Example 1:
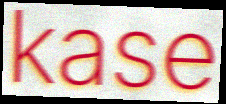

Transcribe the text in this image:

kase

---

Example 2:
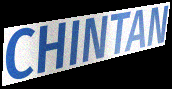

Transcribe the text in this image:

CHINTAN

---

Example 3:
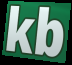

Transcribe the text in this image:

kb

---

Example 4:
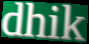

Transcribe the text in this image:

dhik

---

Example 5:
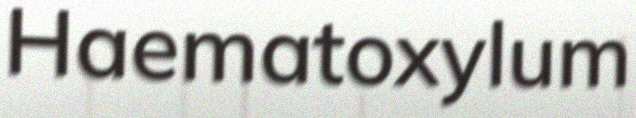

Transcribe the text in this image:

Haematoxylum